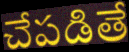
చేపడితే